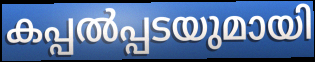
കപ്പൽപ്പടയുമായി